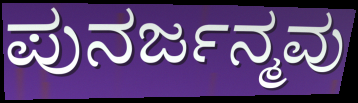
ಪುನರ್ಜನ್ಮವು